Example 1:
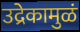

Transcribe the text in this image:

उद्रेकामुळं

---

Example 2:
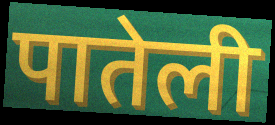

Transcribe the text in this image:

पातेली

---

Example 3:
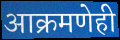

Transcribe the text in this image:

आक्रमणेही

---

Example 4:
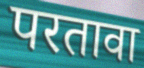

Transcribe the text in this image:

परतावा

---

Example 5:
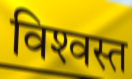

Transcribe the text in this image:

विश्‍वस्त